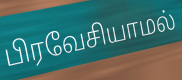
பிரவேசியாமல்